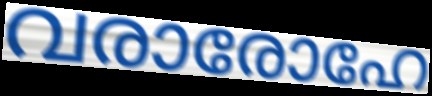
വരാരോഹേ